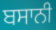
ਬਸਾਨੀ